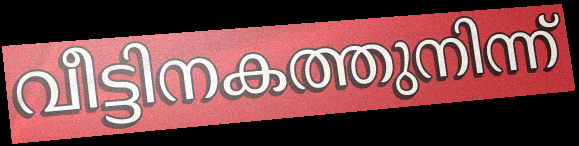
വീട്ടിനകത്തുനിന്ന്